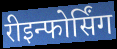
रीइन्फोर्सिंग